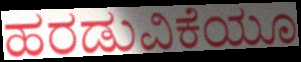
ಹರಡುವಿಕೆಯೂ